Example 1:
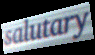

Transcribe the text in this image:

salutary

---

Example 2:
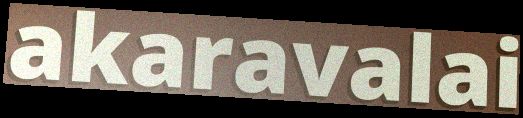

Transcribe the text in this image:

akaravalai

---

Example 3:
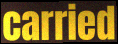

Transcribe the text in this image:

carried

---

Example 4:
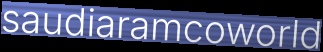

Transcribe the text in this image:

saudiaramcoworld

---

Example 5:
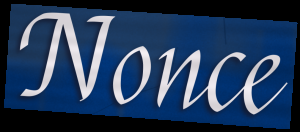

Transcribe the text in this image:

Nonce